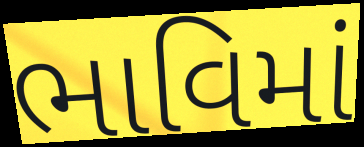
ભાવિમાં